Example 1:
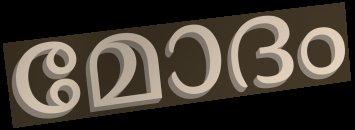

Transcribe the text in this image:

മോദം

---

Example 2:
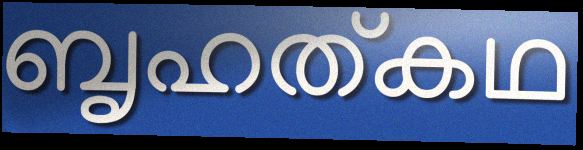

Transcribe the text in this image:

ബൃഹത്കഥ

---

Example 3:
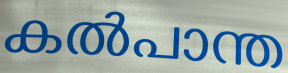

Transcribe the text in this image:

കൽപാന്ത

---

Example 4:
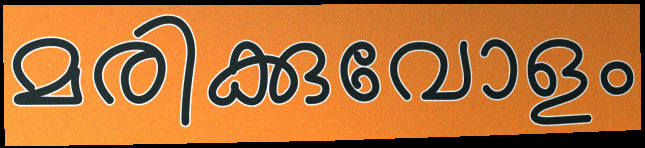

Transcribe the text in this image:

മരിക്കുവോളം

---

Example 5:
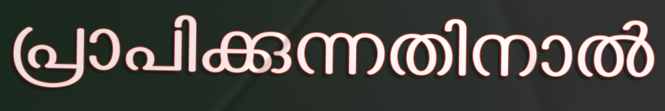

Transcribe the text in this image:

പ്രാപിക്കുന്നതിനാൽ